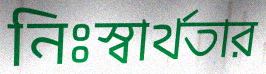
নিঃস্বার্থতার